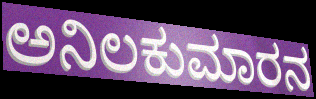
ಅನಿಲಕುಮಾರನ